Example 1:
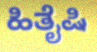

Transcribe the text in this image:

ಹಿತೈಷಿ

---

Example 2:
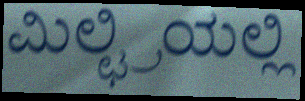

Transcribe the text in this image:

ಮಿಲ್ಟ್ರಿಯಲ್ಲಿ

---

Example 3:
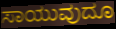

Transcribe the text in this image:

ಸಾಯುವುದೂ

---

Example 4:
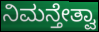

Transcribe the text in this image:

ನಿಮನ್ತೇತ್ವಾ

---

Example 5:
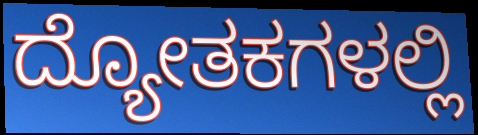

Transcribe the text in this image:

ದ್ಯೋತಕಗಳಲ್ಲಿ